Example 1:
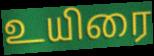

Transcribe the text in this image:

உயிரை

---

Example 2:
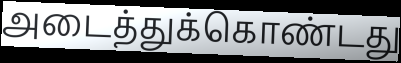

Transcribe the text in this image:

அடைத்துக்கொண்டது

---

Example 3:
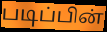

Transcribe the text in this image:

படிப்பின்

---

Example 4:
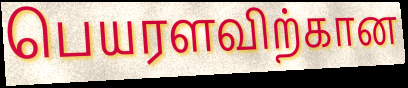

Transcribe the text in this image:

பெயரளவிற்கான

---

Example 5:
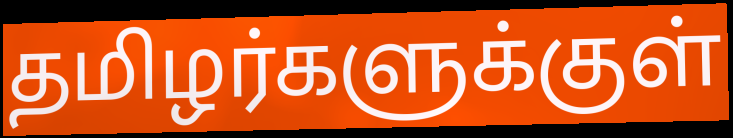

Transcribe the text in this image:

தமிழர்களுக்குள்